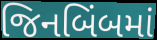
જિનબિંબમાં